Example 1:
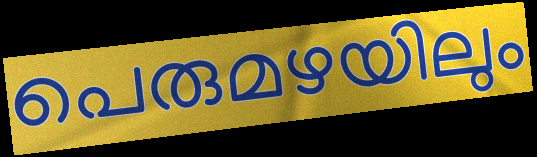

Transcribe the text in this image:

പെരുമഴയിലും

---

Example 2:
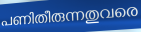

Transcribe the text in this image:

പണിതീരുന്നതുവരെ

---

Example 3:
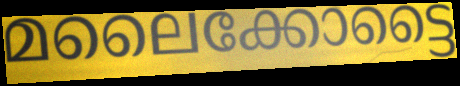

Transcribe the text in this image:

മലൈക്കോട്ടൈ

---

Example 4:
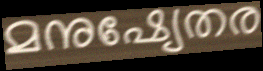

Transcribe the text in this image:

മനുഷ്യേതര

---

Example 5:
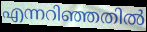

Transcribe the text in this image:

എന്നറിഞ്ഞതിൽ